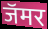
जॅमर